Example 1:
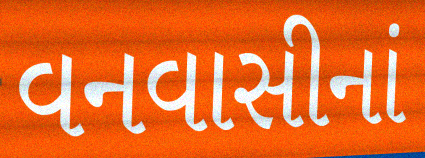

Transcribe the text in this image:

વનવાસીનાં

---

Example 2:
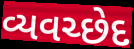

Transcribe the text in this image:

વ્યવચ્છેદ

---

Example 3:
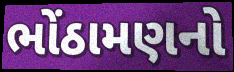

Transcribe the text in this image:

ભોંઠામણનો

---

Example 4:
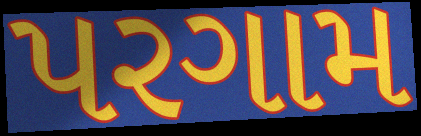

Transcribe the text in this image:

પરગામ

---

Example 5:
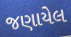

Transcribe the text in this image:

જણાયેલ